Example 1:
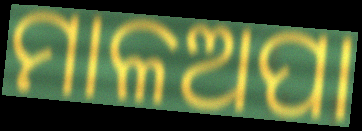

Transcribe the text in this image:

ମାଳଅପା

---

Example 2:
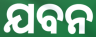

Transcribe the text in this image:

ଯବନ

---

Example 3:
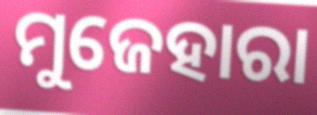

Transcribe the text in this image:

ମୁଜେହାରା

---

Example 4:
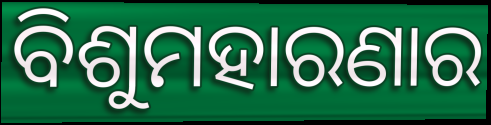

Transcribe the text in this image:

ବିଶୁମହାରଣାର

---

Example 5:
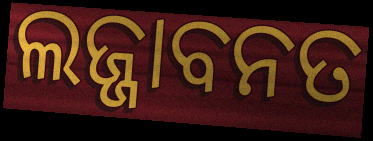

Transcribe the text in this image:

ଲଜ୍ଜାବନତ